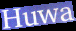
Huwa